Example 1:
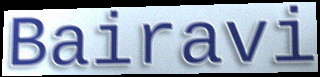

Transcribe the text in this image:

Bairavi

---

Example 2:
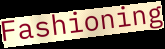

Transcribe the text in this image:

Fashioning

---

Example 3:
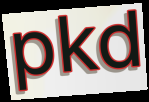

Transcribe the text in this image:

pkd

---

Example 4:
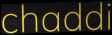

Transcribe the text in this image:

chaddi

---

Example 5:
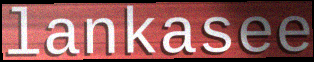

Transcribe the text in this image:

lankasee